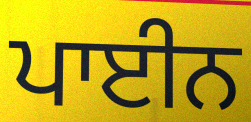
ਪਾਈਨ